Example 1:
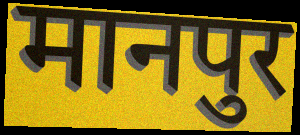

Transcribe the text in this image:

मानपुर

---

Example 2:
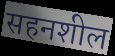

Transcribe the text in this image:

सहनशील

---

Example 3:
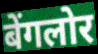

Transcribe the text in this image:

बेंगलोर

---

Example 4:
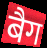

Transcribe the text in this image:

बैग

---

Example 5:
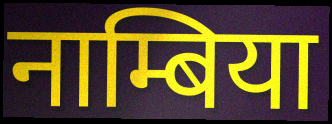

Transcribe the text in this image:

नाम्बिया